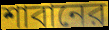
শাবানের